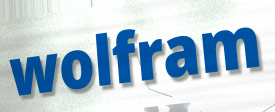
wolfram